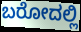
ಬರೋದಲ್ಲಿ